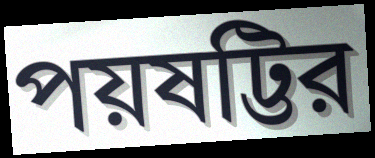
পয়ষট্টির